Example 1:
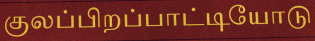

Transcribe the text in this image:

குலப்பிறப்பாட்டியோடு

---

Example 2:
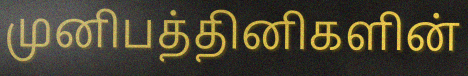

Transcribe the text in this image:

முனிபத்தினிகளின்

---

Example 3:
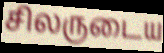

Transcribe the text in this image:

சிலருடைய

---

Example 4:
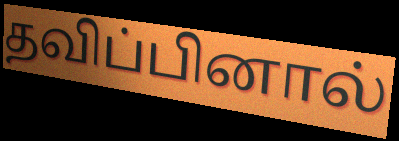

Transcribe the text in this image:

தவிப்பினால்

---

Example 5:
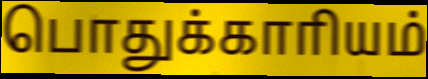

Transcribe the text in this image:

பொதுக்காரியம்